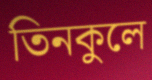
তিনকুলে